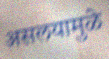
असलयामुळे